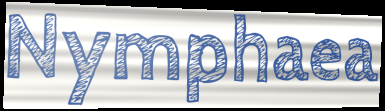
Nymphaea